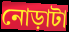
নোড়াটা